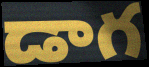
డాగ